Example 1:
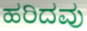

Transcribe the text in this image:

ಹರಿದವು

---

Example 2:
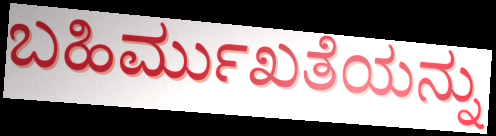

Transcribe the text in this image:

ಬಹಿರ್ಮುಖತೆಯನ್ನು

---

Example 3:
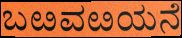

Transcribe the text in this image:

ಬೞವೞಯನೆ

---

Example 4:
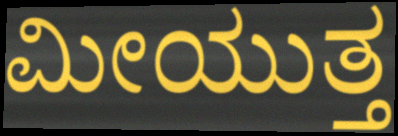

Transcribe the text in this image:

ಮೀಯುತ್ತ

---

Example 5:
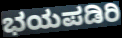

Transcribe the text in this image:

ಭಯಪಡಿರಿ